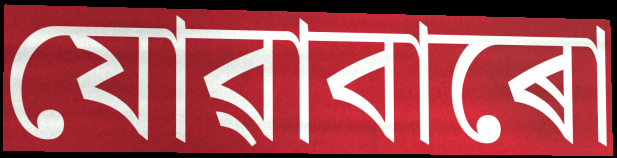
যোৱাবাৰো